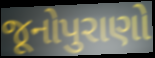
જૂનોપુરાણો